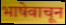
भाषेवाचून